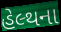
હેલ્થના